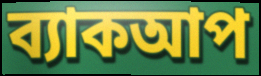
ব্যাকআপ